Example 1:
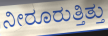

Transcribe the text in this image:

ನೀರೂರುತ್ತಿತ್ತು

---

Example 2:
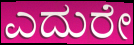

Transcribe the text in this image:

ಎದುರೇ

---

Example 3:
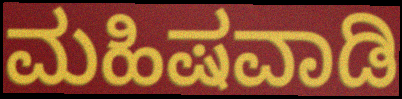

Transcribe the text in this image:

ಮಹಿಷವಾಡಿ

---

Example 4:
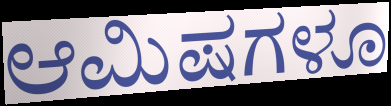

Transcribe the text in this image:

ಆಮಿಷಗಳೂ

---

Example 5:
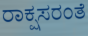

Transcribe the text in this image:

ರಾಕ್ಷಸರಂತೆ